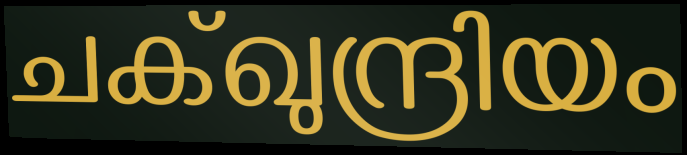
ചക്ഖുന്ദ്രിയം